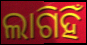
ଲାଗିହିଁ